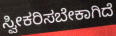
ಸ್ವೀಕರಿಸಬೇಕಾಗಿದೆ